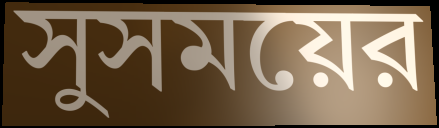
সুসময়ের